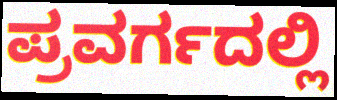
ಪ್ರವರ್ಗದಲ್ಲಿ